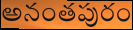
అనంతపురం